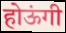
होऊंगी